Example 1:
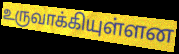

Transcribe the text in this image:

உருவாக்கியுள்ளன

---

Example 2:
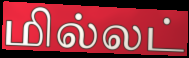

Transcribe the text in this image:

மில்லட்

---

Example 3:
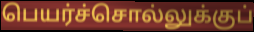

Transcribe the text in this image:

பெயர்ச்சொல்லுக்குப்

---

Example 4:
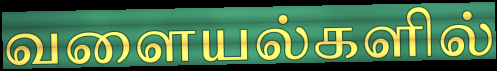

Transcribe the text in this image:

வளையல்களில்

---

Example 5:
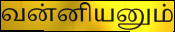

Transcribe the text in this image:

வன்னியனும்